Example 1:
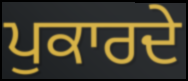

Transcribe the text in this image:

ਪੁਕਾਰਦੇ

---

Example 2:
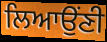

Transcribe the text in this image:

ਲਿਆਉਂਣੀ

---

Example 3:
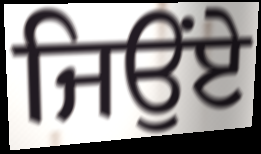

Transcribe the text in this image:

ਜਿਉਂਏ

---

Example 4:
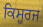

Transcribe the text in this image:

ਕਿਸੂਰਜ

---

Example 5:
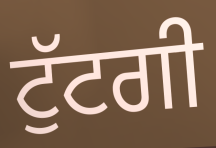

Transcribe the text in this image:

ਟੁੱਟਗੀ